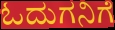
ಓದುಗನಿಗೆ